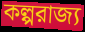
কল্পরাজ্য